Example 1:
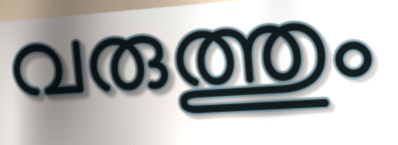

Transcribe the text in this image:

വരുത്തും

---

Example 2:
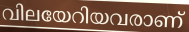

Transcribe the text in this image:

വിലയേറിയവരാണ്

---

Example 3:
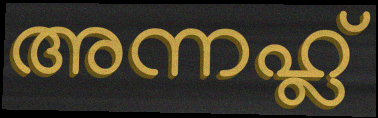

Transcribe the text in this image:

അന്നഹ്ല്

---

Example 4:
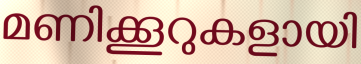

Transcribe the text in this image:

മണിക്കൂറുകളായി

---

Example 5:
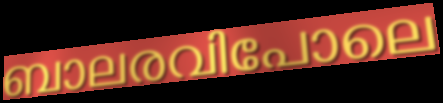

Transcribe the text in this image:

ബാലരവിപോലെ